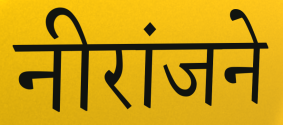
नीरांजने